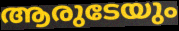
ആരുടേയും